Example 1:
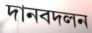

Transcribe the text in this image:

দানবদলন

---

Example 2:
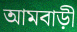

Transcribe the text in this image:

আমবাড়ী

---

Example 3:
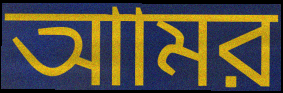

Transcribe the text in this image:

আামর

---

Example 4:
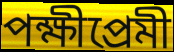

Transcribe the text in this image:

পক্ষীপ্রেমী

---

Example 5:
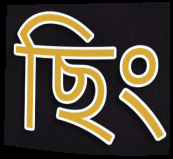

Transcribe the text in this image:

ছিং